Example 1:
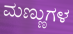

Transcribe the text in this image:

ಮಣ್ಣುಗಳ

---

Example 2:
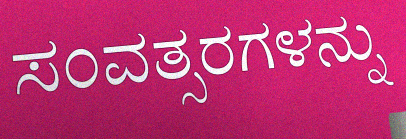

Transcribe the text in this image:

ಸಂವತ್ಸರಗಳನ್ನು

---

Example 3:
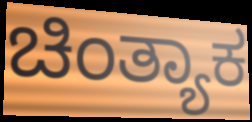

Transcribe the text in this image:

ಚಿಂತ್ಯಾಕ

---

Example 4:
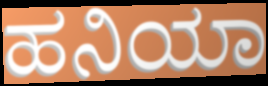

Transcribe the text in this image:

ಹನಿಯಾ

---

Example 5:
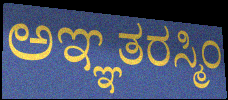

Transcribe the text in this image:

ಅಞ್ಞತರಸ್ಮಿಂ